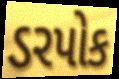
ડરપોક